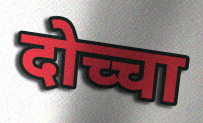
दोच्चा